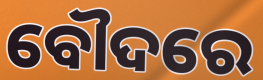
ବୌଦରେ